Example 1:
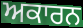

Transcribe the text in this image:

ਅਕਾਰਨ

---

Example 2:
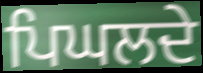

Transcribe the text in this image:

ਪਿਘਲਦੇ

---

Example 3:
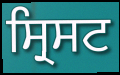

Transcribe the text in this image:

ਸ੍ਰਿਸਟ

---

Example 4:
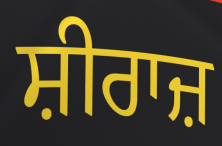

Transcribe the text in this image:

ਸ਼ੀਰਾਜ਼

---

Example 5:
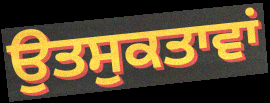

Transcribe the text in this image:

ਉਤਸੁਕਤਾਵਾਂ